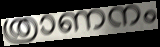
ത്രാണനം